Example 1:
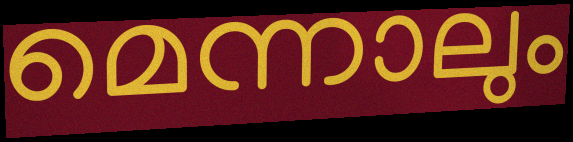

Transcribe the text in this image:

മെന്നാലും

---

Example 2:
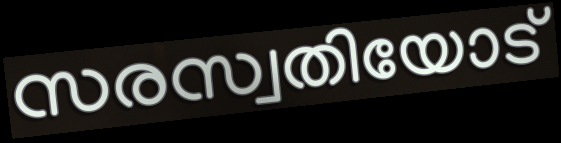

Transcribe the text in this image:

സരസ്വതിയോട്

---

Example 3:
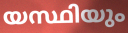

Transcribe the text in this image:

യസ്ഥിയും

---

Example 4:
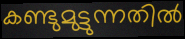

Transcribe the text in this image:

കണ്ടുമുട്ടുന്നതിൽ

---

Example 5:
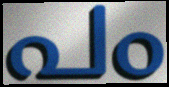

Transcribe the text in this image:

പം